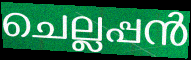
ചെല്ലപ്പൻ